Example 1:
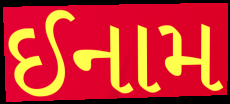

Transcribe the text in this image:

ઈનામ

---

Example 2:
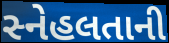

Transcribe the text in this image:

સ્નેહલતાની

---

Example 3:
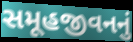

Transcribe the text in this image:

સમૂહજીવનનું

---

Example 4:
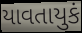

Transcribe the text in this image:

યાવતાયુકં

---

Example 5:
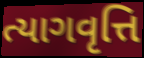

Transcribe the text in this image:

ત્યાગવૃત્તિ